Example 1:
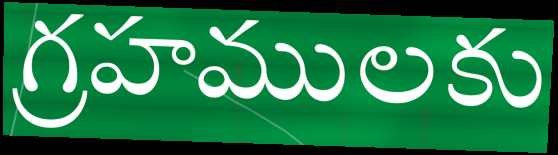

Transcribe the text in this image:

గ్రహములకు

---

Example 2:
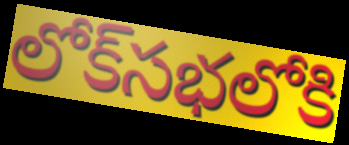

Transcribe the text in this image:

లోక్‌సభలోకి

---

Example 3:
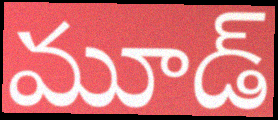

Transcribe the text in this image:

మూడ్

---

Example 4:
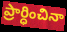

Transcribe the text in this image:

ప్రార్ధించినా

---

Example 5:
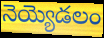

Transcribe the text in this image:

నెయ్యెడలం